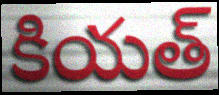
కియత్